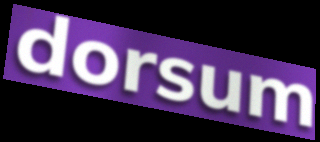
dorsum